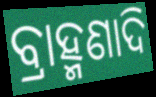
ବ୍ରାହ୍ମଣାଦି